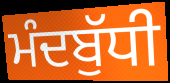
ਮੰਦਬੁੱਧੀ